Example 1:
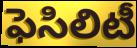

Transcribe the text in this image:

ఫెసిలిటీ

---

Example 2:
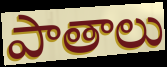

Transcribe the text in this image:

పాతాలు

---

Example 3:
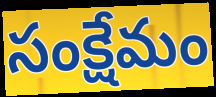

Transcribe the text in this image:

సంక్షేమం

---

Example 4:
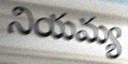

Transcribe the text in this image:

నియమ్య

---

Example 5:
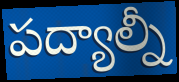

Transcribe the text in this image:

పద్యాల్నీ